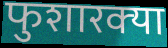
फुशारक्‍या